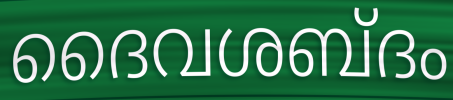
ദൈവശബ്ദം